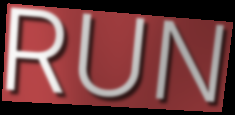
RUN